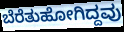
ಬೆರೆತುಹೋಗಿದ್ದವು